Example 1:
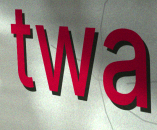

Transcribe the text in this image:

twa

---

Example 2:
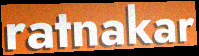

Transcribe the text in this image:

ratnakar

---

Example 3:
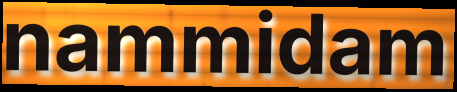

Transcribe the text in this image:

nammidam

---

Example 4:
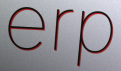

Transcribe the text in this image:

erp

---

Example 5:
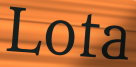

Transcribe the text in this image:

Lota